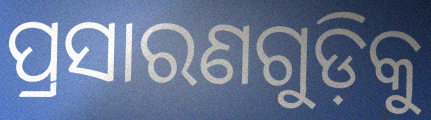
ପ୍ରସାରଣଗୁଡ଼ିକୁ